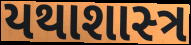
યથાશાસ્‍ત્ર